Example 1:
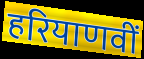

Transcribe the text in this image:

हरियाणवीं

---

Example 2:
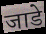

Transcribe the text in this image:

जाडे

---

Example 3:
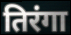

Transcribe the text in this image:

तिरंगा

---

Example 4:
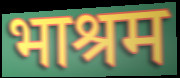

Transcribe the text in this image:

भाश्रम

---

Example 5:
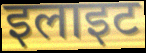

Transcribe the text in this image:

इलाइट